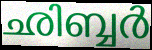
ഛിബ്ബർ